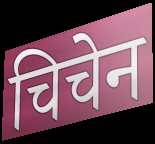
चिचेन